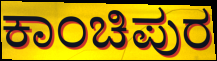
ಕಾಂಚಿಪುರ